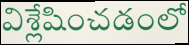
విశ్లేషించడంలో